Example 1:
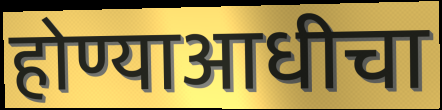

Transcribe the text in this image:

होण्याआधीचा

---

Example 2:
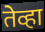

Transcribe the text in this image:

तेव्हा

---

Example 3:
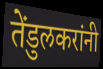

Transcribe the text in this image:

तेंडुलकरांनी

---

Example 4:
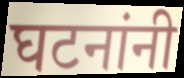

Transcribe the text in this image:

घटनांनी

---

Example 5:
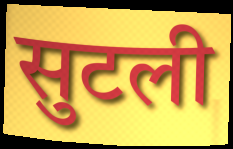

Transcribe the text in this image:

सुटली